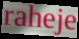
raheje